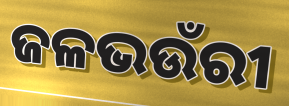
ଜଳଭଉଁରୀ